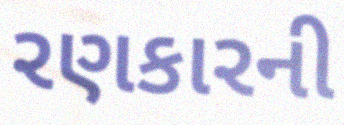
રણકારની